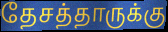
தேசத்தாருக்கு